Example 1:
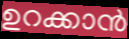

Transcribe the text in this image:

ഉറക്കാൻ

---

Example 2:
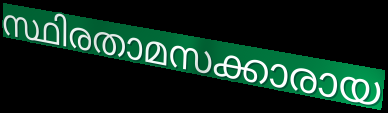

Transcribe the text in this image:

സ്ഥിരതാമസക്കാരായ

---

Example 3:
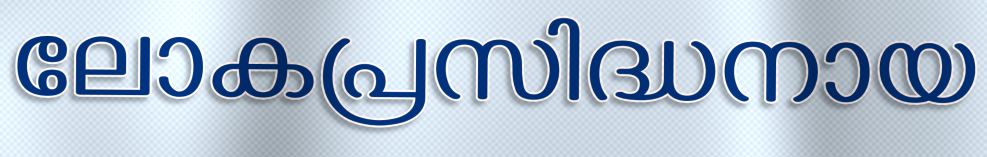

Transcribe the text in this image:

ലോകപ്രസിദ്ധനായ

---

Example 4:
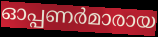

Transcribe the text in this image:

ഓപ്പണർമാരായ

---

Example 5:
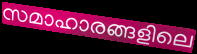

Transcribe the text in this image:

സമാഹാരങ്ങളിലെ